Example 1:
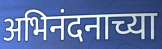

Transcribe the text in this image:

अभिनंदनाच्या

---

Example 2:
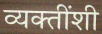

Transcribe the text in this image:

व्यक्तींशी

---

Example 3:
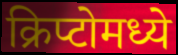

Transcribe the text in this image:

क्रिप्टोमध्ये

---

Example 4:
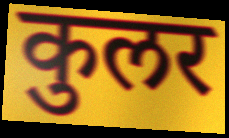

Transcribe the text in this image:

कुलर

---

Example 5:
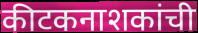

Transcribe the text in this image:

कीटकनाशकांची